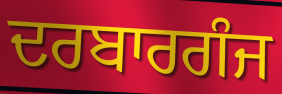
ਦਰਬਾਰਗੰਜ